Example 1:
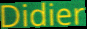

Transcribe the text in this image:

Didier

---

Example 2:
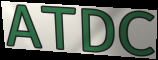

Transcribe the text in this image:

ATDC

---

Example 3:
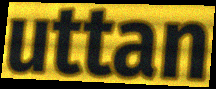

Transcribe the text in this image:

uttan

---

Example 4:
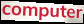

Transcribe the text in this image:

computer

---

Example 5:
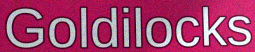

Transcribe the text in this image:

Goldilocks